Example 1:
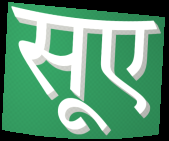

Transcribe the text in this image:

सूए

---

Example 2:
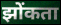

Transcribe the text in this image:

झोंकता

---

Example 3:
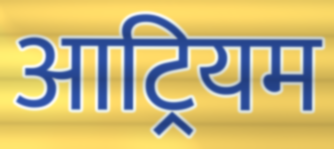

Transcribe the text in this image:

आट्रियम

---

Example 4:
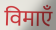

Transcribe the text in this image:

विमाएँ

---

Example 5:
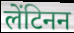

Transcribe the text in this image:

लेंटिनन